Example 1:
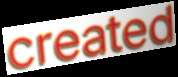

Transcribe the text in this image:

created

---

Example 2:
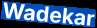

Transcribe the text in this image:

Wadekar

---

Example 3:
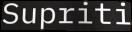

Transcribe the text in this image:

Supriti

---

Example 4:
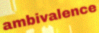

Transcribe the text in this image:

ambivalence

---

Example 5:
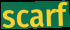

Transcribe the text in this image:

scarf